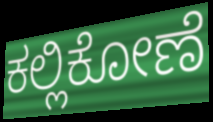
ಕಲ್ಲಿಕೋಣೆ